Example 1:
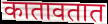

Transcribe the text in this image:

कातावतात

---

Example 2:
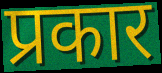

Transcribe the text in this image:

प्रकार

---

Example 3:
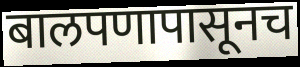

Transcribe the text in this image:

बालपणापासूनच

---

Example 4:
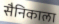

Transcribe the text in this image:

सैनिकाला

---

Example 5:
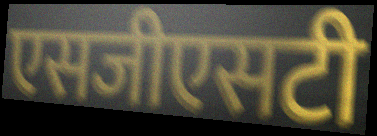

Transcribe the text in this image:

एसजीएसटी